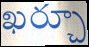
ఖర్చూ